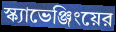
স্ক্যাভেঞ্জিংয়ের